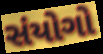
સંયોગો